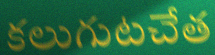
కలుగుటచేత